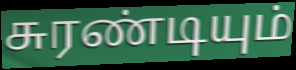
சுரண்டியும்